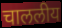
चाललीय